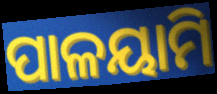
ପାଳୟାମି